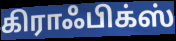
கிராஃபிக்ஸ்